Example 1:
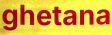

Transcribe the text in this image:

ghetana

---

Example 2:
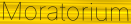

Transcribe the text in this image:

Moratorium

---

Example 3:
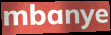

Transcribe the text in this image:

mbanye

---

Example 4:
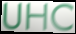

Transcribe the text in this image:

UHC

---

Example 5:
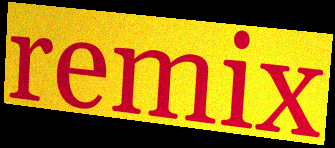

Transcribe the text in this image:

remix